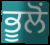
ਭੂਲੋਂ